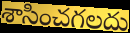
శాసించగలదు